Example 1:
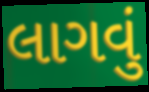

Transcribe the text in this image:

લાગવું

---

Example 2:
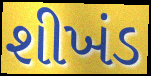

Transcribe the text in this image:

શીખંડ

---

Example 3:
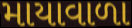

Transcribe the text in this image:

માયાવાળા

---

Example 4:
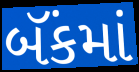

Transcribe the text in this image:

બૅંકમાં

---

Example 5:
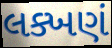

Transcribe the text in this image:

લક્ખણં